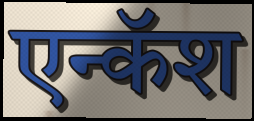
एन्कॅश